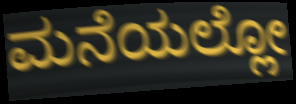
ಮನೆಯಲ್ಲೋ